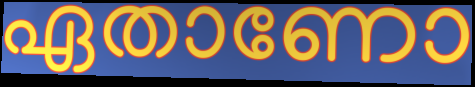
ഏതാണോ